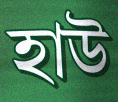
হাউ